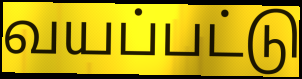
வயப்பட்டு